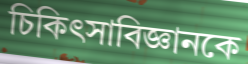
চিকিৎসাবিজ্ঞানকে